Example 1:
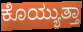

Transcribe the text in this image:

ಕೊಯ್ಯುತ್ತಾ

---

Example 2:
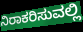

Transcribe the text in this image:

ನಿರಾಕರಿಸುವಲ್ಲಿ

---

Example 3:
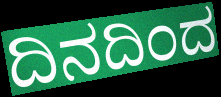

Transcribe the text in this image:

ದಿನದಿಂದ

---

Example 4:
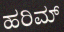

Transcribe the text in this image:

ಹರಿಮ್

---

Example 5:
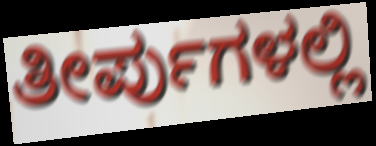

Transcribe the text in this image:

ತೀರ್ಪುಗಳಲ್ಲಿ